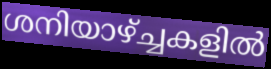
ശനിയാഴ്ച്ചകളിൽ